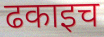
ढकाइच